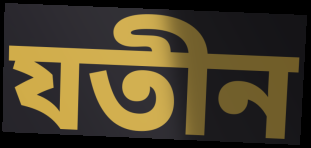
যতীন